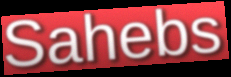
Sahebs